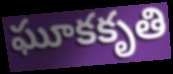
ఘూకకృతి